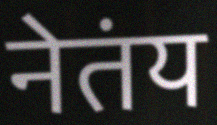
नेतंय